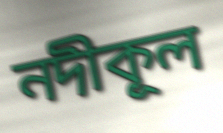
নদীকূল